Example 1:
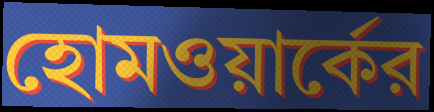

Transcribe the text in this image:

হোমওয়ার্কের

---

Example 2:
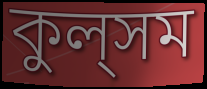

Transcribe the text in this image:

কুল্‌সম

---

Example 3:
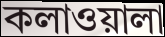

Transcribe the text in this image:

কলাওয়ালা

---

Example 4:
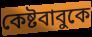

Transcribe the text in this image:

কেষ্টবাবুকে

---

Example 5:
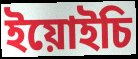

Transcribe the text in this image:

ইয়োইচি